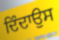
ਦਿੰਦਾਉਸ